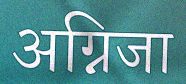
अग्निजा